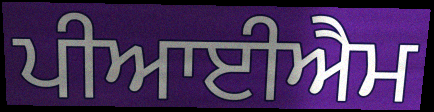
ਪੀਆਈਐਮ